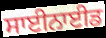
ਸਾਈਨਾਈਡ